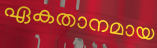
ഏകതാനമായ